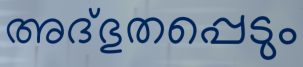
അദ്ഭുതപ്പെടും